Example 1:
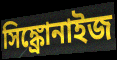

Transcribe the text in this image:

সিঙ্ক্রোনাইজ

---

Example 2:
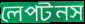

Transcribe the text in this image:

লেপটনস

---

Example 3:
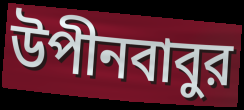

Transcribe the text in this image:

উপীনবাবুর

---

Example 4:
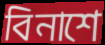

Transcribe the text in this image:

বিনাশে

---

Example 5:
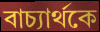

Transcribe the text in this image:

বাচ্যার্থকে